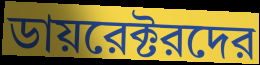
ডায়রেক্টরদের